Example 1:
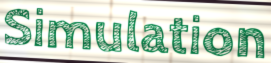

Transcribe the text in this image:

Simulation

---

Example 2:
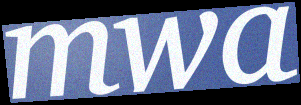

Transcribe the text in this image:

mwa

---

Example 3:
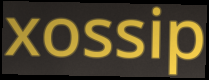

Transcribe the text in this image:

xossip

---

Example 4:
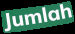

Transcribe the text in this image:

Jumlah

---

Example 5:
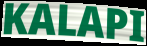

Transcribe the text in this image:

KALAPI